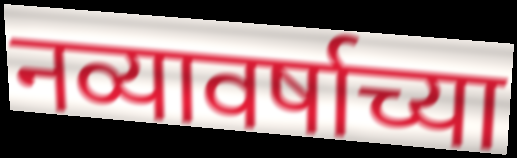
नव्यावर्षाच्या